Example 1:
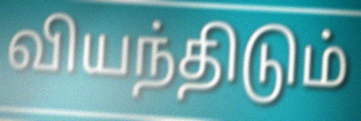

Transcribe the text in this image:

வியந்திடும்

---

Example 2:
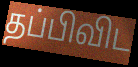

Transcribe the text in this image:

தப்பிவிட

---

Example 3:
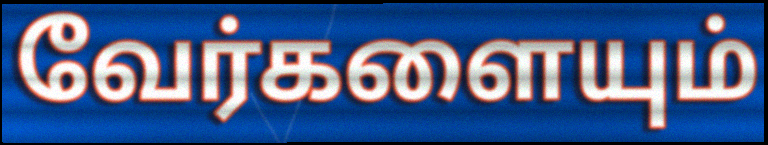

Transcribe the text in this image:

வேர்களையும்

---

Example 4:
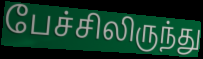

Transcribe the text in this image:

பேச்சிலிருந்து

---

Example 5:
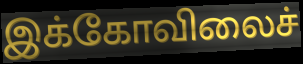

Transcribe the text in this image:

இக்கோவிலைச்